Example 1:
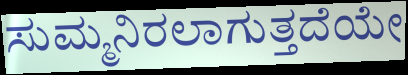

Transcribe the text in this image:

ಸುಮ್ಮನಿರಲಾಗುತ್ತದೆಯೇ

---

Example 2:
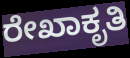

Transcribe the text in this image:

ರೇಖಾಕೃತಿ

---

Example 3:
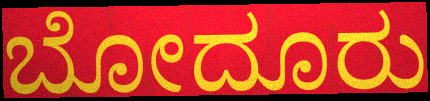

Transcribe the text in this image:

ಬೋದೂರು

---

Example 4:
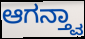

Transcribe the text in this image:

ಆಗನ್ತ್ವಾ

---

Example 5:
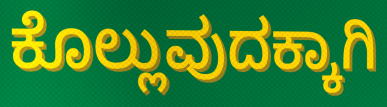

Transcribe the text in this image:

ಕೊಲ್ಲುವುದಕ್ಕಾಗಿ